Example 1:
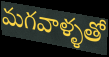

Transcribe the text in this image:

మగవాళ్ళతో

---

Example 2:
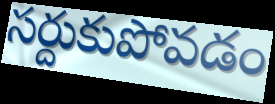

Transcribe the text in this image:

సర్దుకుపోవడం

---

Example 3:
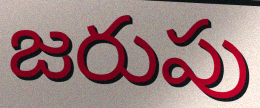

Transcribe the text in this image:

జరుపు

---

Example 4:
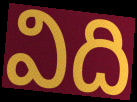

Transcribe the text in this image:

విది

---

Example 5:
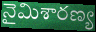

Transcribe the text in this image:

నైమిశారణ్య